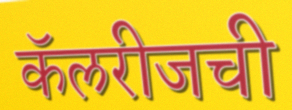
कॅलरीजची